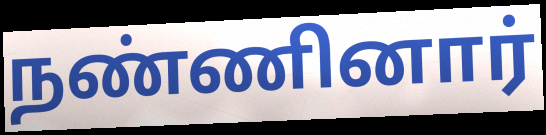
நண்ணினார்